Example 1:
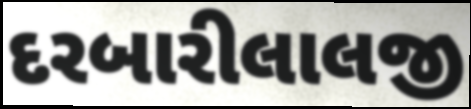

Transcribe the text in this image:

દરબારીલાલજી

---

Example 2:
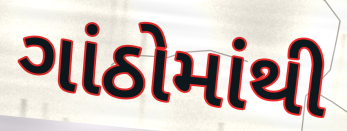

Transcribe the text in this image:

ગાંઠોમાંથી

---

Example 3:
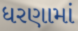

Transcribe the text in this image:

ધરણામાં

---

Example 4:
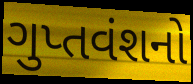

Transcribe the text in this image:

ગુપ્તવંશનો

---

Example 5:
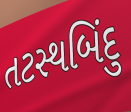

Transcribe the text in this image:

તટસ્થબિંદુ